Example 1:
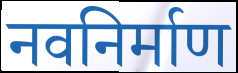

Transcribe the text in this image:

नवनिर्माण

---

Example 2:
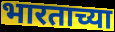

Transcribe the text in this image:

भारताच्या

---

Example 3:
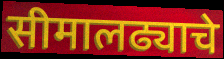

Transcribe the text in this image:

सीमालढ्याचे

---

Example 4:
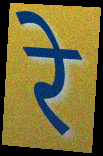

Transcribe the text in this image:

रे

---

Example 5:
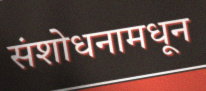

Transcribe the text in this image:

संशोधनामधून